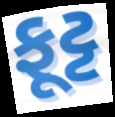
ફૂટ્ટ